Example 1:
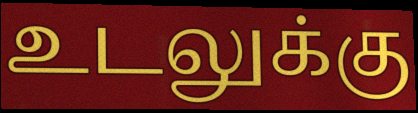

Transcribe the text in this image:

உடலுக்கு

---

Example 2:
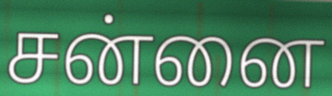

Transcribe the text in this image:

சன்னை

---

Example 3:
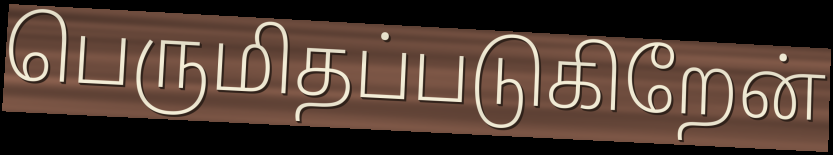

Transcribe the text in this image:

பெருமிதப்படுகிறேன்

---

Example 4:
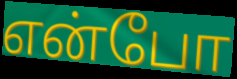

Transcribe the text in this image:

என்போ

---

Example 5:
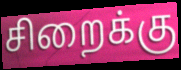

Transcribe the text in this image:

சிறைக்கு